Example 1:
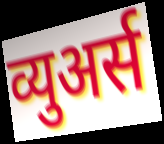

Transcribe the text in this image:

व्युअर्स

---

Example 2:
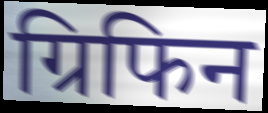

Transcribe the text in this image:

ग्रिफिन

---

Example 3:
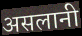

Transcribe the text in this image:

असलानी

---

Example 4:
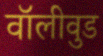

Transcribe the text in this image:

वॉलीवुड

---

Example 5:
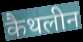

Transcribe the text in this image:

कैथलीन